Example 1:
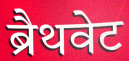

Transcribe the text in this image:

ब्रैथवेट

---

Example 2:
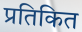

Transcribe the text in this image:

प्रतिकित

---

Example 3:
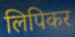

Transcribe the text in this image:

लिपिकर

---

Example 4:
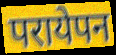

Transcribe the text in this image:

परायेपन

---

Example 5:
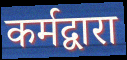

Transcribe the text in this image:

कर्मद्वारा